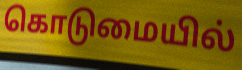
கொடுமையில்